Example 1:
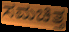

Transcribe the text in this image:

ಸಮಚಿತ್ತ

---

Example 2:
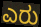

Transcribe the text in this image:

ಎರು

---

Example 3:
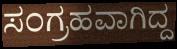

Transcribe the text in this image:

ಸಂಗ್ರಹವಾಗಿದ್ದ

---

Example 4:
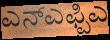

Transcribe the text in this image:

ಎನ್ಎಫ್ಪಿಎ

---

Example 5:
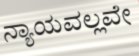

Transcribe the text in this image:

ನ್ಯಾಯವಲ್ಲವೇ